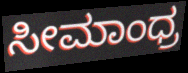
ಸೀಮಾಂಧ್ರ